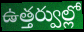
ఉత్తర్వుల్లో